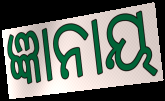
ଜ୍ଞାନାୟ